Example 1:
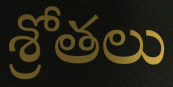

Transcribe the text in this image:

శ్రోతలు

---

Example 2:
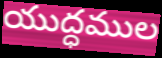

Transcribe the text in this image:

యుద్ధముల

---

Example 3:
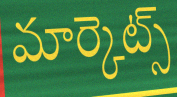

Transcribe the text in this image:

మార్కెట్స్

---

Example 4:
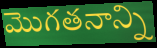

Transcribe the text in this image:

మొగతనాన్ని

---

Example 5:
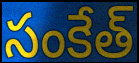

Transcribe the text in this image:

సంకేత్